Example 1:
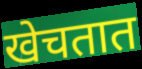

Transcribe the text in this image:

खेचतात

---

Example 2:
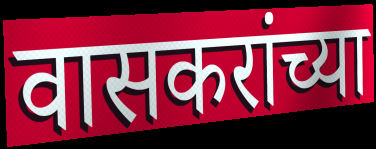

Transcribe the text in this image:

वासकरांच्या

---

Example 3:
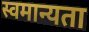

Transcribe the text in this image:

स्वमान्यता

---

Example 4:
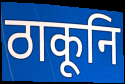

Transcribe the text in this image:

ठाकूनि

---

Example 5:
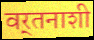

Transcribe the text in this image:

वर्तनाशी